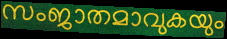
സംജാതമാവുകയും